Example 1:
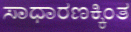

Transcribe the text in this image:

ಸಾಧಾರಣಕ್ಕಿಂತ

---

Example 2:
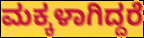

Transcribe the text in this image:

ಮಕ್ಕಳಾಗಿದ್ದರೆ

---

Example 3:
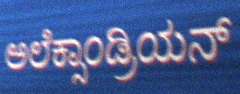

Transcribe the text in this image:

ಅಲೆಕ್ಸಾಂಡ್ರಿಯನ್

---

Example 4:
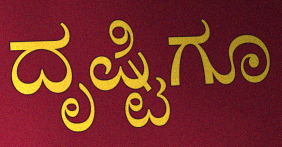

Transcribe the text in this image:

ದೃಷ್ಟಿಗೂ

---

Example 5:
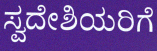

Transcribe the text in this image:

ಸ್ವದೇಶಿಯರಿಗೆ